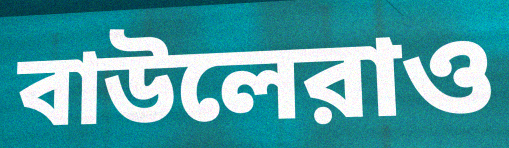
বাউলেরাও